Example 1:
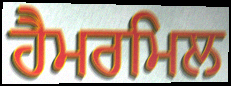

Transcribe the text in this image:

ਹੈਮਰਮਿਲ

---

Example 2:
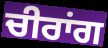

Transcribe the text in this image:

ਚੀਰਾਂਗ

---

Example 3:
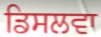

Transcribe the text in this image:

ਡਿਸਲਵਾ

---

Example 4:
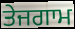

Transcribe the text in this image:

ਤੇਜਗਾਮ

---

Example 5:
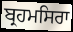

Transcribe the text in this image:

ਬ੍ਰਹਮਸਿਰਾ